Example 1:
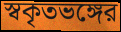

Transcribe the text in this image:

স্বকৃতভঙ্গের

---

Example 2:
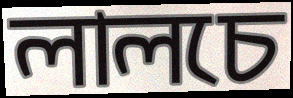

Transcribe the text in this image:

লালচে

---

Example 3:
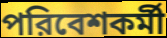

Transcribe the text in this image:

পরিবেশকর্মী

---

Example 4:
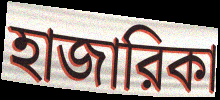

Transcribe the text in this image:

হাজারিকা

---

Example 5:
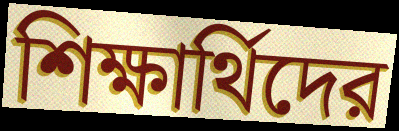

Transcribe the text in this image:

শিক্ষার্থিদের